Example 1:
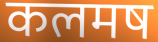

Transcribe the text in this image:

कलमष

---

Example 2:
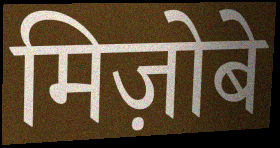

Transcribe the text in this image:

मिज़ोबे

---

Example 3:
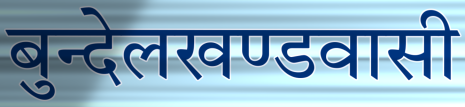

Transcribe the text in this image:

बुन्देलखण्डवासी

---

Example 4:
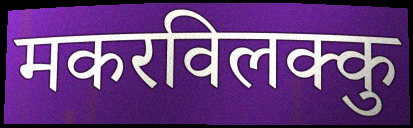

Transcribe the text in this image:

मकरविलक्कु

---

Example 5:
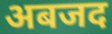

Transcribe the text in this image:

अबजद